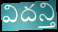
విదన్తి